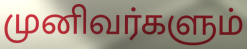
முனிவர்களும்